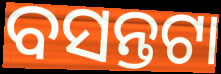
ବସନ୍ତଟା